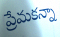
ప్రేమకన్నా